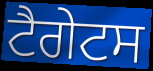
ਟੈਗੇਟਸ